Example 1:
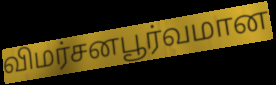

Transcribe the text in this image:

விமர்சனபூர்வமான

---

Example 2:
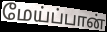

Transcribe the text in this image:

மேய்ப்பான்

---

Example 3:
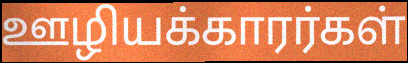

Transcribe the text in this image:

ஊழியக்காரர்கள்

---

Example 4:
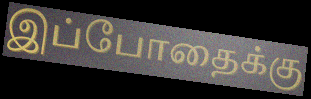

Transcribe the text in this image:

இப்போதைக்கு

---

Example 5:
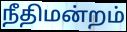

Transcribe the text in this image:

நீதிமன்றம்